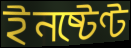
ইনষ্টেণ্ট